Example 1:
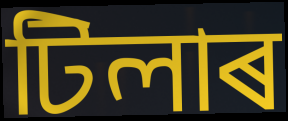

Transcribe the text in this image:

টিলাৰ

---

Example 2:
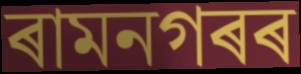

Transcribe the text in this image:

ৰামনগৰৰ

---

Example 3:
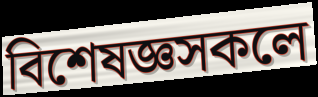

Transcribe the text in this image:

বিশেষজ্ঞসকলে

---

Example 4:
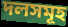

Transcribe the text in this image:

দলসমূহ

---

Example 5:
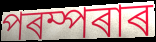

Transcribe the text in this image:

পৰম্পৰাৰ